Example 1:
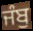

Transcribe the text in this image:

ਜੰਬੁ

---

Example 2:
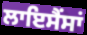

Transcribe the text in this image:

ਲਾਇਸੈਂਸਾਂ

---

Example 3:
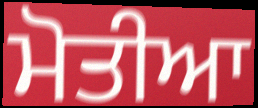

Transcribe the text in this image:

ਮੋਤੀਆ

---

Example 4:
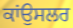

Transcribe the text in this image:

ਕਾਂਉਸਲਰ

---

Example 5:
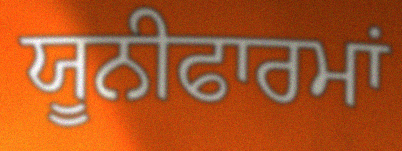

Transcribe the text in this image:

ਯੂਨੀਫਾਰਮਾਂ